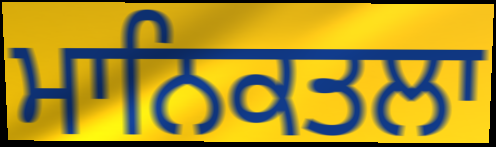
ਮਾਨਿਕਤਲਾ